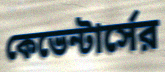
কেভেন্টার্সের